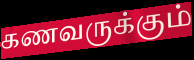
கணவருக்கும்